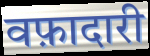
वफ़ादारी